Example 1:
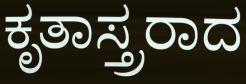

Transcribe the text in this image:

ಕೃತಾಸ್ತ್ರರಾದ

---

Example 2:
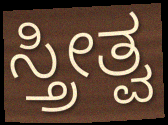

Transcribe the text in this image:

ಸ್ತ್ರೀತ್ವ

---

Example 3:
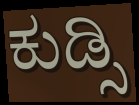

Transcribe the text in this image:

ಕುಡ್ಸಿ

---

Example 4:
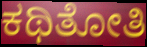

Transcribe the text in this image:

ಕಥಿತೋತಿ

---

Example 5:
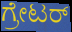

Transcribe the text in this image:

ಗ್ರೇಟರ್